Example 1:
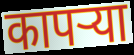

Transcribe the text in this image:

कापर्‍या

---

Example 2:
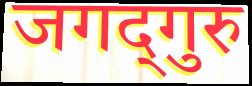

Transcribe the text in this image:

जगद्‍गुरु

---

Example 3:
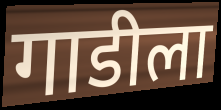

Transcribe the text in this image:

गाडीला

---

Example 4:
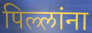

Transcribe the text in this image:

पिल्लांना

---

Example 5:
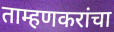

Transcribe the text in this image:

ताम्हणकरांचा